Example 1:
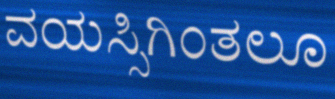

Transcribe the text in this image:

ವಯಸ್ಸಿಗಿಂತಲೂ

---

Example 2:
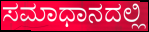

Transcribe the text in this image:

ಸಮಾಧಾನದಲ್ಲಿ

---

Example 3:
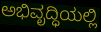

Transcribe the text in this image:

ಅಭಿವೃದ್ಧಿಯಲ್ಲಿ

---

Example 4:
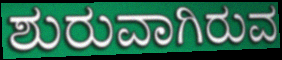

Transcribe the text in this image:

ಶುರುವಾಗಿರುವ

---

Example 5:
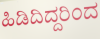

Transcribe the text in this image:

ಹಿಡಿದಿದ್ದರಿಂದ